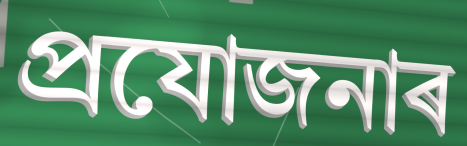
প্ৰযোজনাৰ